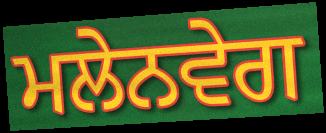
ਮਲੇਨਵੇਗ